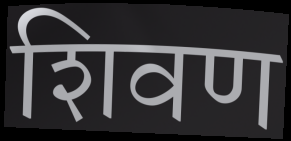
शिवण